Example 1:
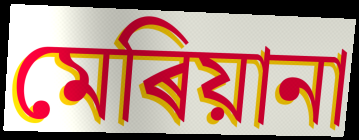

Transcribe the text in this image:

মেৰিয়ানা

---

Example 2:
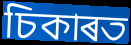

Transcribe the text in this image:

চিকাৰত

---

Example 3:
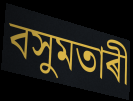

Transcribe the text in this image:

বসুমতাৰী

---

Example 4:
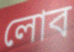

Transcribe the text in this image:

লোব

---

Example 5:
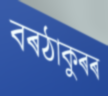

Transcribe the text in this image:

বৰঠাকুৰৰ